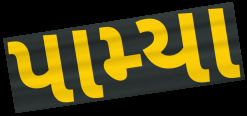
પામ્યા